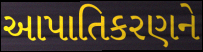
આપાતિકરણને